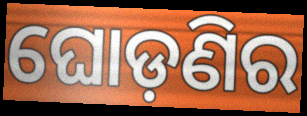
ଘୋଡ଼ଣିର